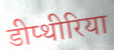
डीप्थीरिया